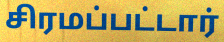
சிரமப்பட்டார்